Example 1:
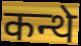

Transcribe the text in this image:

कन्थे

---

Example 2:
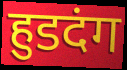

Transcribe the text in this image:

हुडदंग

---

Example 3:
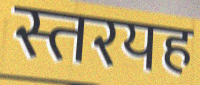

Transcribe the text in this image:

स्तरयह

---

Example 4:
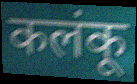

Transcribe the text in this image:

कलंकू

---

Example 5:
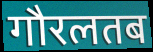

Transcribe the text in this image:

गौरलतब